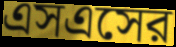
এসএসের